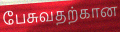
பேசுவதற்கான